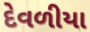
દેવળીયા